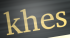
khes